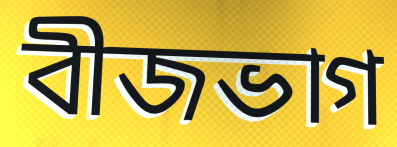
বীজভাগ